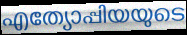
എത്യോപ്പിയയുടെ